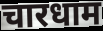
चारधाम